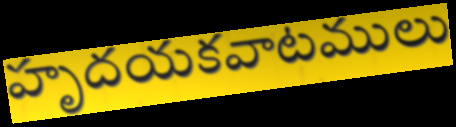
హృదయకవాటములు